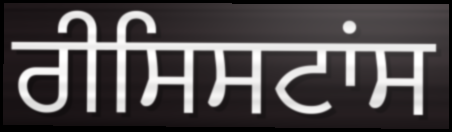
ਰੀਸਿਸਟਾਂਸ